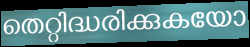
തെറ്റിദ്ധരിക്കുകയോ